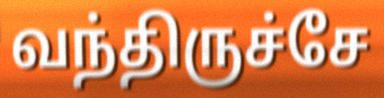
வந்திருச்சே